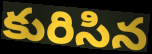
కురిసిన